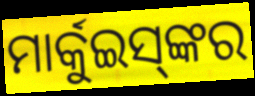
ମାର୍କୁଇସ୍‍ଙ୍କର